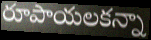
రూపాయలకన్నా